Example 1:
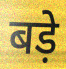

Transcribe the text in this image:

बड़े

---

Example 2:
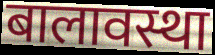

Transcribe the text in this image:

बालावस्था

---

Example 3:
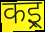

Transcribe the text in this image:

कइ्र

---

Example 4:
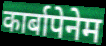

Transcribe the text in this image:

कार्बापेनेम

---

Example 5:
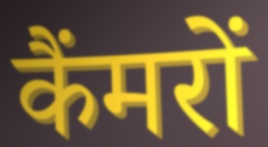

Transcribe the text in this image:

कैंमरों